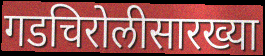
गडचिरोलीसारख्या